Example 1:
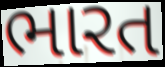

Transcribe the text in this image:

ભારત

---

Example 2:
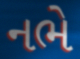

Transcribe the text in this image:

નભે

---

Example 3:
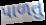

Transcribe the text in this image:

પાળતુ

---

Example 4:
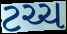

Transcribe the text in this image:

ટચ્ચ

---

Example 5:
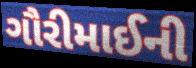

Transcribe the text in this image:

ગૌરીમાઈની